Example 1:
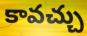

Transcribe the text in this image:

కావచ్చు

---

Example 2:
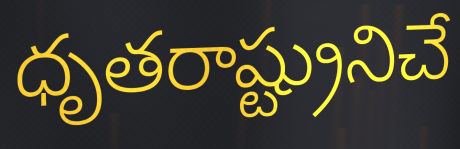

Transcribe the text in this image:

ధృతరాష్ట్రునిచే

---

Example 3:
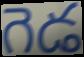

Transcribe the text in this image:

గెడ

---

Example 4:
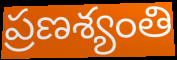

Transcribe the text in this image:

ప్రణశ్యంతి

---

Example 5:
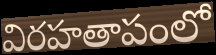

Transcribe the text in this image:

విరహతాపంలో